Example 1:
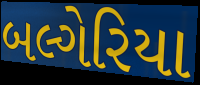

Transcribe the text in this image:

બલ્ગેરિયા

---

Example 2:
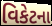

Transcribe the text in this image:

વિકેટના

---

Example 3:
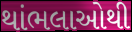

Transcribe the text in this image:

થાંભલાઓથી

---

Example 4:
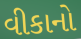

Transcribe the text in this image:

વીકાનો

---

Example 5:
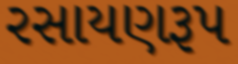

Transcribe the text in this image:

રસાયણરૂપ